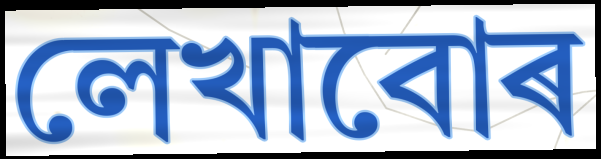
লেখাবোৰ